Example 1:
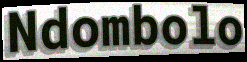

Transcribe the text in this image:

Ndombolo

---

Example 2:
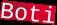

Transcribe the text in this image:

Boti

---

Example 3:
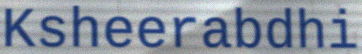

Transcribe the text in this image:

Ksheerabdhi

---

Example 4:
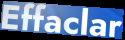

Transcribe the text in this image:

Effaclar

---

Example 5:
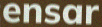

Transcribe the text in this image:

ensar